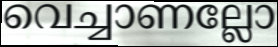
വെച്ചാണല്ലോ